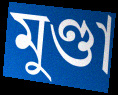
মুণ্ডা